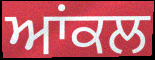
ਆਂਕਲ